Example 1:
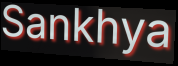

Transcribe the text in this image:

Sankhya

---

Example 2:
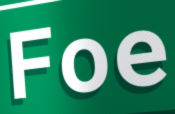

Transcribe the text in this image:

Foe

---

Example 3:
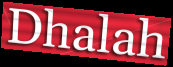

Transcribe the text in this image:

Dhalah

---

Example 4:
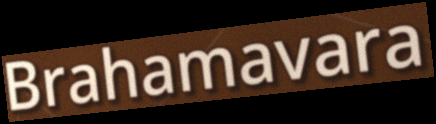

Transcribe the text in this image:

Brahamavara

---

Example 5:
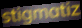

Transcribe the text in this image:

stigmatiz